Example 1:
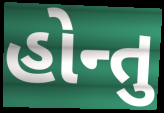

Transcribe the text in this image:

હોન્તુ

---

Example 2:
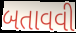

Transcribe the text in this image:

બતાવવી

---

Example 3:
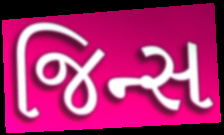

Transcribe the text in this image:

જિન્સ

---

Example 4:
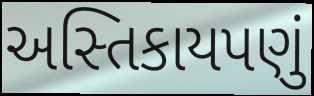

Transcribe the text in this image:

અસ્તિકાયપણું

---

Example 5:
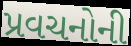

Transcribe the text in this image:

પ્રવચનોની